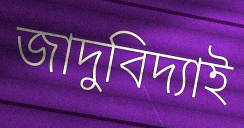
জাদুবিদ্যাই